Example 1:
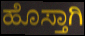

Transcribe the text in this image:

ಹೊಸ್ತಾಗಿ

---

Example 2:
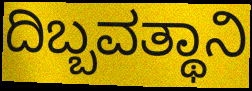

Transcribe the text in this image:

ದಿಬ್ಬವತ್ಥಾನಿ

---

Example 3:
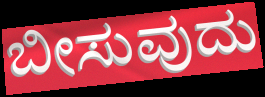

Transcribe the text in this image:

ಬೀಸುವುದು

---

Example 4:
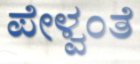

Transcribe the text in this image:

ಪೇಳ್ವಂತೆ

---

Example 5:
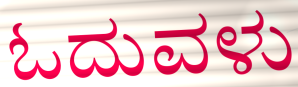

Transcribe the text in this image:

ಓದುವಳು